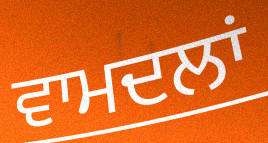
ਵਾਮਦਲਾਂ